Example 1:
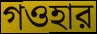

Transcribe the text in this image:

গওহার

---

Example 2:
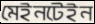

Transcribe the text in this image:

মেইনটেইন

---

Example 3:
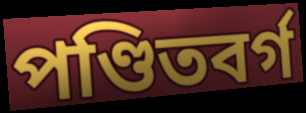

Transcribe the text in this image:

পণ্ডিতবর্গ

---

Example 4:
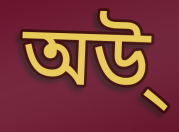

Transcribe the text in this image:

অউ্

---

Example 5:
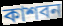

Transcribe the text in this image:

কাশবন